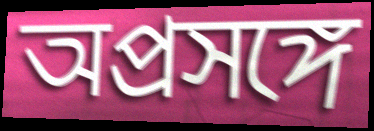
অপ্রসঙ্গে